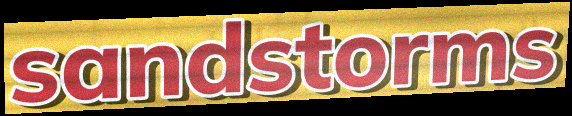
sandstorms